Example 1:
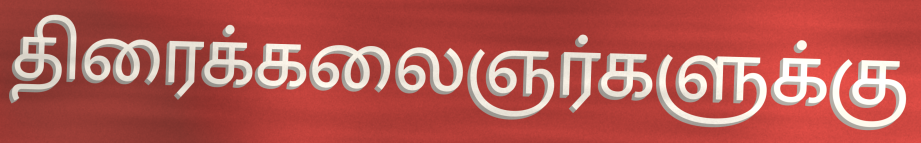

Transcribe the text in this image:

திரைக்கலைஞர்களுக்கு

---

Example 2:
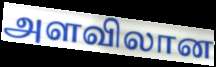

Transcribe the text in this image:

அளவிலான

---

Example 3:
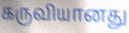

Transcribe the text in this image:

கருவியானது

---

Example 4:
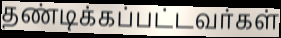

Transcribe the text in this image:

தண்டிக்கப்பட்டவர்கள்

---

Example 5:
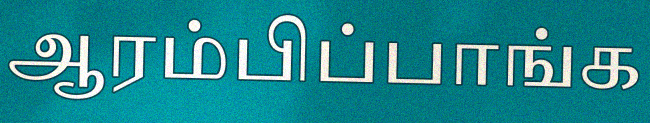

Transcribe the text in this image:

ஆரம்பிப்பாங்க